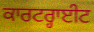
ਕਾਰਟਰ੍ਹਾਈਟ